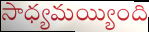
సాధ్యమయ్యింది